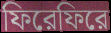
ফিরেফিরে